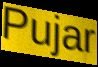
Pujar